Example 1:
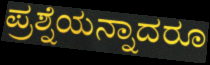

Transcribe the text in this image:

ಪ್ರಶ್ನೆಯನ್ನಾದರೂ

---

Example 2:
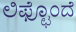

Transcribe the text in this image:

ಲಿಫ್ಟೊಂದೆ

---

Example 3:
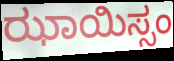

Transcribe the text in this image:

ಝಾಯಿಸ್ಸಂ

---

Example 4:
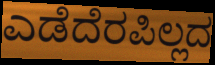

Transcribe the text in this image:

ಎಡೆದೆರಪಿಲ್ಲದ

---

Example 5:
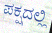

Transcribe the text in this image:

ಪಕ್ಷದಲ್ಲಿ